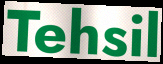
Tehsil